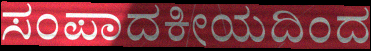
ಸಂಪಾದಕೀಯದಿಂದ